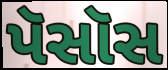
પૅસૉસ